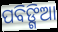
ପବିଙ୍ଗିଆ